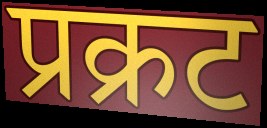
प्रक्रट